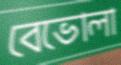
বেভোলা